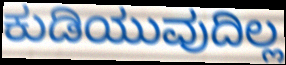
ಕುಡಿಯುವುದಿಲ್ಲ